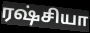
ரஷ்சியா